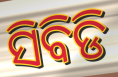
ସିବିଡି